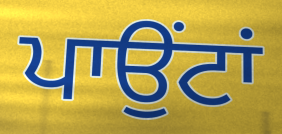
ਪਾਉਂਟਾਂ